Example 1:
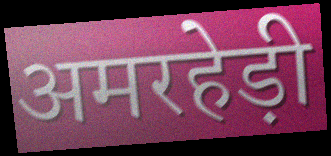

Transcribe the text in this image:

अमरहेड़ी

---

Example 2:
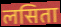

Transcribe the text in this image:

लसिता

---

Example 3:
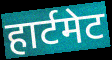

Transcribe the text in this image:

हार्टमेट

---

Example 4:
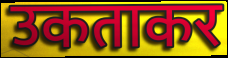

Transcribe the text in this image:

उकताकर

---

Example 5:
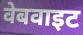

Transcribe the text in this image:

वेबवाइट